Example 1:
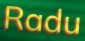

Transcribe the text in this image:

Radu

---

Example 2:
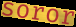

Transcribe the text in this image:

soror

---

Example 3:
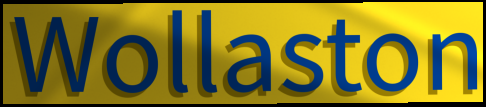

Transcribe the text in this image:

Wollaston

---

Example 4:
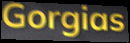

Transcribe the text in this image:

Gorgias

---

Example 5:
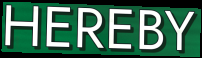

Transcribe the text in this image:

HEREBY